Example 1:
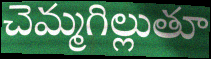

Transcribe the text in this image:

చెమ్మగిల్లుతూ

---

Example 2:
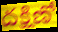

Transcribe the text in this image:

దక్షిణో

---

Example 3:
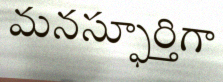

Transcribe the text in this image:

మనస్ఫూర్తిగా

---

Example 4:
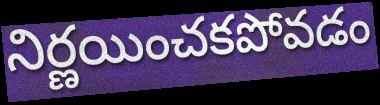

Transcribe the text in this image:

నిర్ణయించకపోవడం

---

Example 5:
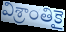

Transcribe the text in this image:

విశ్రాంతికై